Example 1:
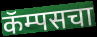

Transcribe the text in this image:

कॅम्पसचा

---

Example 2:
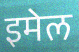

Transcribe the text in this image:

इमेल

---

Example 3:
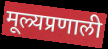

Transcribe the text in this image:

मूल्यप्रणाली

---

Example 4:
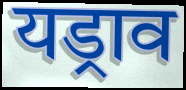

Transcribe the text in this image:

यड्राव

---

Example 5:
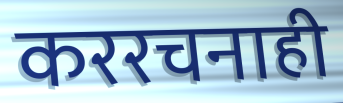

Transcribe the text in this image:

कररचनाही